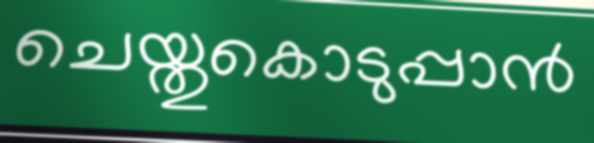
ചെയ്തുകൊടുപ്പാൻ